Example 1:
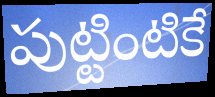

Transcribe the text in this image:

పుట్టింటికే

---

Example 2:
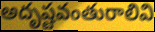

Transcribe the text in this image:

అదృష్టవంతురాలివి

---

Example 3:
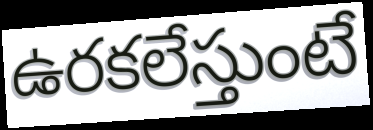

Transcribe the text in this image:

ఉరకలేస్తుంటే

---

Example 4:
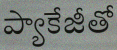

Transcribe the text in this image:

ప్యాకేజీతో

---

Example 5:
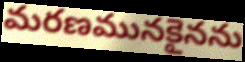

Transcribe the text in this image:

మరణమునకైనను